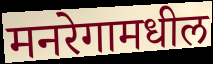
मनरेगामधील